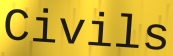
Civils